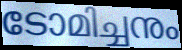
ടോമിച്ചനും